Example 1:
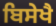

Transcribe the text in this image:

ਬਿਸੇਖੈ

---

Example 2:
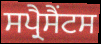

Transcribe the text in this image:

ਸਪ੍ਰੈਸੈਂਟਸ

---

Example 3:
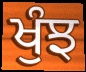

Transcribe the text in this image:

ਖੁੰਝ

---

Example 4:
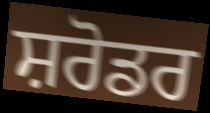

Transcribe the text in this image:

ਸ਼ਰੋਡਰ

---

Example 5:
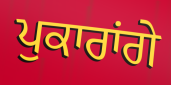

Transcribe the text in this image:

ਪੁਕਾਰਾਂਗੇ